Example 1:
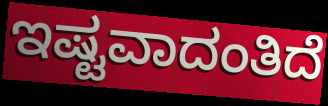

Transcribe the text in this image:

ಇಷ್ಟವಾದಂತಿದೆ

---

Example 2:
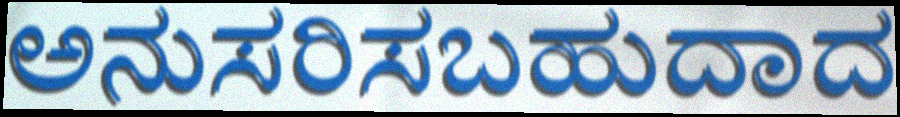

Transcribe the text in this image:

ಅನುಸರಿಸಬಹುದಾದ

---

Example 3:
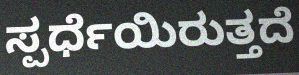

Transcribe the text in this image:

ಸ್ಪರ್ಧೆಯಿರುತ್ತದೆ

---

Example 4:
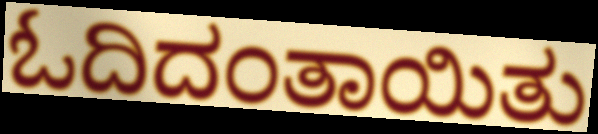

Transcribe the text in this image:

ಓದಿದಂತಾಯಿತು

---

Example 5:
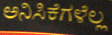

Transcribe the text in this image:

ಅನಿಸಿಕೆಗಳೆಲ್ಲ